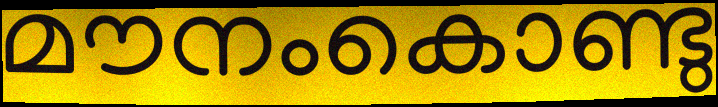
മൗനംകൊണ്ടു